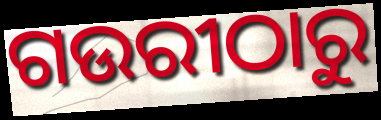
ଗଉରୀଠାରୁ